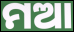
ମଆ